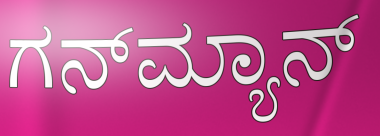
ಗನ್‌ಮ್ಯಾನ್